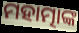
ମହାତ୍ମାଙ୍କ